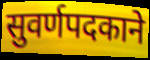
सुवर्णपदकाने